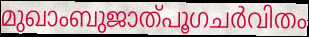
മുഖാംബുജാത്പൂഗചർവിതം